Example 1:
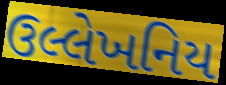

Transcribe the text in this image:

ઉલ્લેખનિય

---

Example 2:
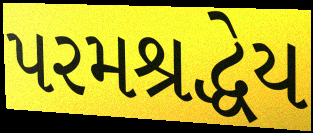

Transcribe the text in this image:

પરમશ્રદ્ધેય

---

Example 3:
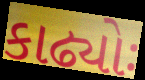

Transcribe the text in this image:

કાઢ્યોઃ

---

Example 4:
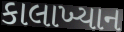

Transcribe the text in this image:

કાલાખ્યાન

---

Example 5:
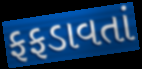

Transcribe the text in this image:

ફફડાવતાં